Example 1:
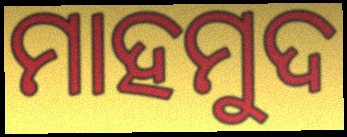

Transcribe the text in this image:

ମାହମୁଦ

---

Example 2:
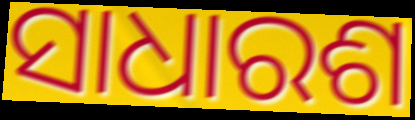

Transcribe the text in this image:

ସାଧାରଶ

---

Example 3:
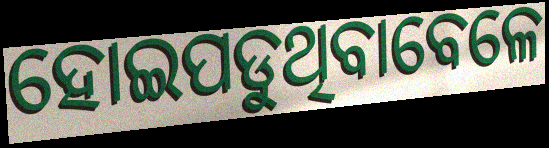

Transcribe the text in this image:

ହୋଇପଡୁଥିବାବେଳେ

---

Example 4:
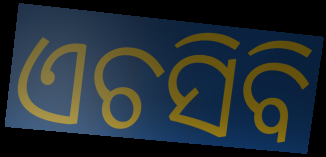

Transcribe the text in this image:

ଏଚସିବି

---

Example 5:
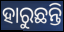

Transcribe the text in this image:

ହାରୁଛନ୍ତି